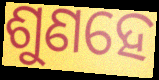
ଶୁଣହେ